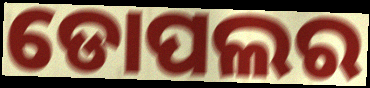
ଡୋପଲର